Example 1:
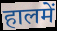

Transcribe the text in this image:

हालमें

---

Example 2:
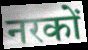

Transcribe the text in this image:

नरकों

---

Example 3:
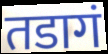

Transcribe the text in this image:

तडागं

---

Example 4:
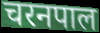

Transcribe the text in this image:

चरनपाल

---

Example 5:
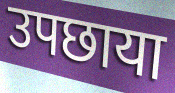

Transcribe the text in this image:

उपछाया